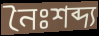
নৈঃশব্দ্য